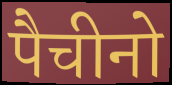
पैचीनो